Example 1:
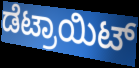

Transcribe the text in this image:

ಡೆಟ್ರಾಯಿಟ್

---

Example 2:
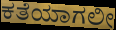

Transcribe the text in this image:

ಕತೆಯಾಗಲೀ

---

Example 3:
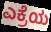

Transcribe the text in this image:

ಎಕ್ರೆಯ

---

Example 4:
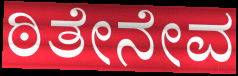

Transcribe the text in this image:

ಠಿತೇನೇವ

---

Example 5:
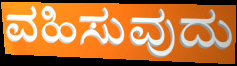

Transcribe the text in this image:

ವಹಿಸುವುದು